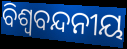
ବିଶ୍ୱବନ୍ଦନୀୟ